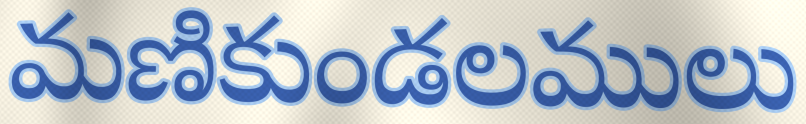
మణికుండలములు